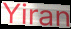
Yiran